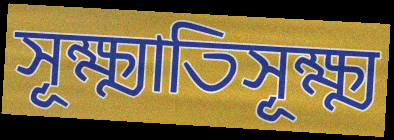
সূক্ষ্মাতিসূক্ষ্ম